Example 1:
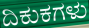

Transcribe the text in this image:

ದಿಕುಕಗಳು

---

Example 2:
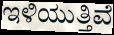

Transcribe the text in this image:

ಇಳಿಯುತ್ತಿವೆ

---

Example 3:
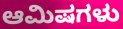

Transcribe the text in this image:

ಆಮಿಷಗಳು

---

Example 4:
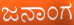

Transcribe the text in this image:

ಜನಾಂಗ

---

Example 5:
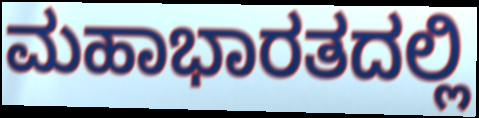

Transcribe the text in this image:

ಮಹಾಭಾರತದಲ್ಲಿ